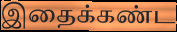
இதைக்கண்ட